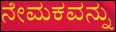
ನೇಮಕವನ್ನು